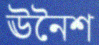
ঊনৈশ